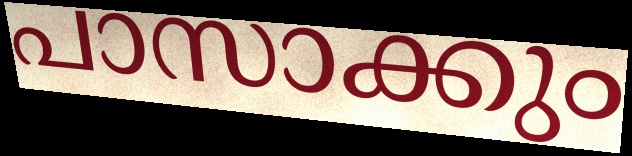
പാസാക്കും